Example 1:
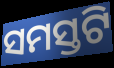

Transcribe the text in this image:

ସମସ୍ତଟି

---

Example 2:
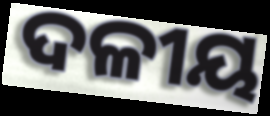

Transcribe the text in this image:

ଦଳୀୟ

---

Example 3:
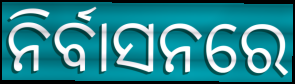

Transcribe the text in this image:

ନିର୍ବାସନରେ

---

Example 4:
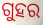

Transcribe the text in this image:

ଗୁହର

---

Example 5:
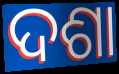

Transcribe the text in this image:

ଦଶା